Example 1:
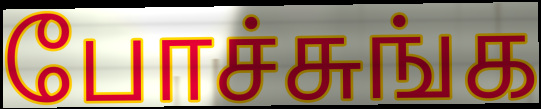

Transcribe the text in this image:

போச்சுங்க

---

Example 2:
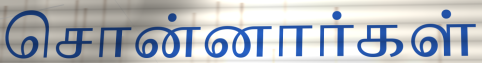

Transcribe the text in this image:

சொன்னார்கள்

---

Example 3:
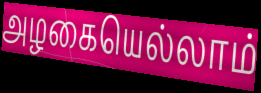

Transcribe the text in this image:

அழகையெல்லாம்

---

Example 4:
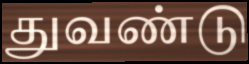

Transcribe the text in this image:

துவண்டு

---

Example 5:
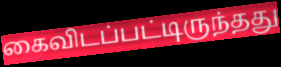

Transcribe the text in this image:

கைவிடப்பட்டிருந்தது